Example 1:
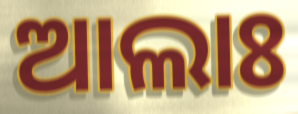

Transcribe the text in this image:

ଆଲାଃ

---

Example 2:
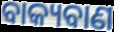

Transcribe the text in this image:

ବାକ୍ୟବାଣ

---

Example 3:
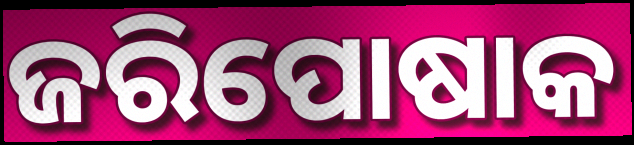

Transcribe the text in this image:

ଜରିପୋଷାକ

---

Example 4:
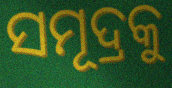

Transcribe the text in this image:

ସମୂଦ୍ରକୁ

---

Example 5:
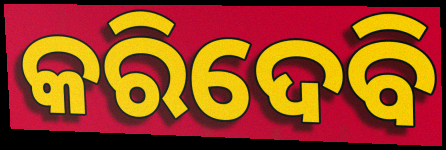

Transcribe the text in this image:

କରିଦେବି